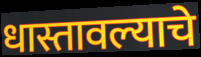
धास्तावल्याचे